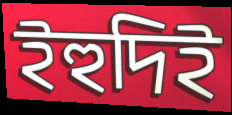
ইহুদিই